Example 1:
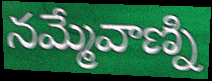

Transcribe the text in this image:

నమ్మేవాణ్ని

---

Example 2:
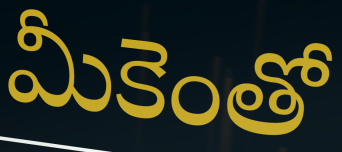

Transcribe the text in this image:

మీకెంతో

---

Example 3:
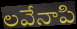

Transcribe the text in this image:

లవేనాపి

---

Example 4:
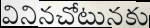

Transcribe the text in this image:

వినినచోటునకు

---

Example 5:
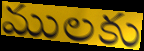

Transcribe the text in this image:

ములకు